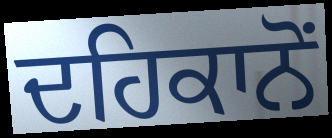
ਦਹਿਕਾਨੋਂ